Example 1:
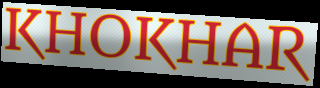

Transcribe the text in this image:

KHOKHAR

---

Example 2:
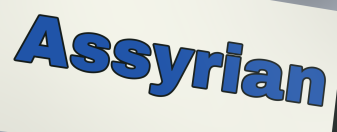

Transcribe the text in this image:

Assyrian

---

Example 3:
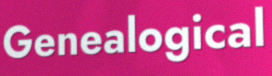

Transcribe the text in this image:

Genealogical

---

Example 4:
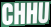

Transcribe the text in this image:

CHHU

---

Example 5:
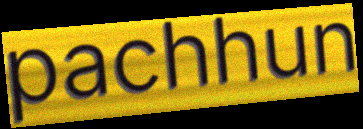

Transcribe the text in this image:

pachhun